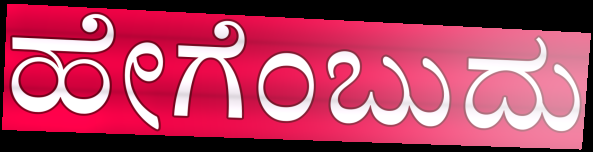
ಹೇಗೆಂಬುದು